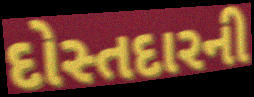
દોસ્તદારની